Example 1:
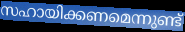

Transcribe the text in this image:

സഹായിക്കണമെന്നുണ്ട്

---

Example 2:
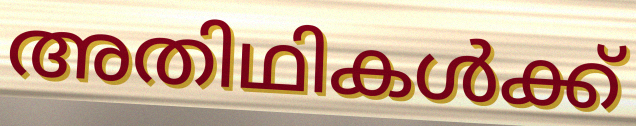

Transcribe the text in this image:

അതിഥികൾക്ക്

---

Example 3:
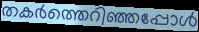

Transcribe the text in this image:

തകർത്തെറിഞ്ഞപ്പോൾ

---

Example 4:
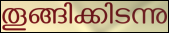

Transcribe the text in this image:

തൂങ്ങിക്കിടന്നു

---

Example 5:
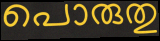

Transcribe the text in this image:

പൊരുതു